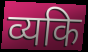
व्यकि